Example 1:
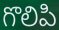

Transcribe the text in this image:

గొలిపి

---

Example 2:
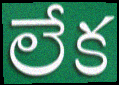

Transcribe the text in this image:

లేక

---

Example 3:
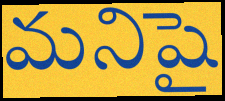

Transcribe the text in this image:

మనిషై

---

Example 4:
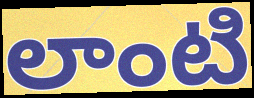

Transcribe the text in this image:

లాంటి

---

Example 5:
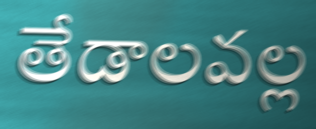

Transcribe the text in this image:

తేడాలవల్ల